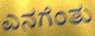
ಎನಗೆಂತು